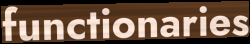
functionaries